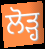
ਲੋੜ੍ਹ